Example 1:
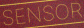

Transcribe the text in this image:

SENSOR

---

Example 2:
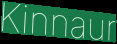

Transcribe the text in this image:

Kinnaur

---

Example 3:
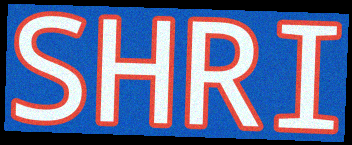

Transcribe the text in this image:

SHRI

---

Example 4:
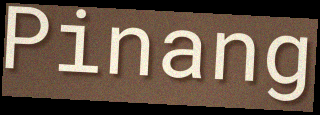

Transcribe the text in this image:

Pinang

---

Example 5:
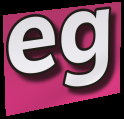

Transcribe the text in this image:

eg